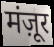
मंज़ूर